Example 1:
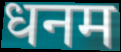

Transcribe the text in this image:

धनम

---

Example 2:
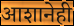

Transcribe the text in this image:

आशानेही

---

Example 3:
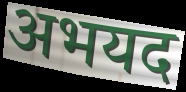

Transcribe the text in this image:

अभयद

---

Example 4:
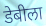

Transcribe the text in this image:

डेबीला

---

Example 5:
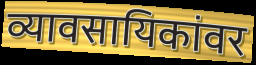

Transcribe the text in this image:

व्यावसायिकांवर